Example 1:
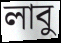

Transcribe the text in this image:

লাবু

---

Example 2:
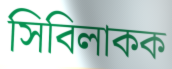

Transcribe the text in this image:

সিবিলাকক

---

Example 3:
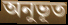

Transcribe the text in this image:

অনুভূত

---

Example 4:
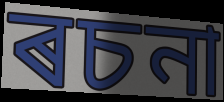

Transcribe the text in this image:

ৰচনা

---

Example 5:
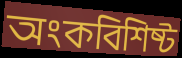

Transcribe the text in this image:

অংকবিশিষ্ট